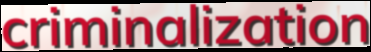
criminalization